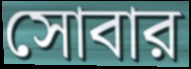
সোবার